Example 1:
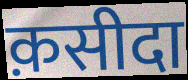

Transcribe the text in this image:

क़सीदा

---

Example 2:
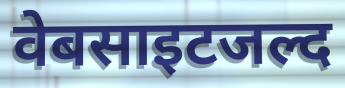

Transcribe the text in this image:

वेबसाइटजल्द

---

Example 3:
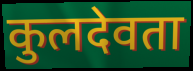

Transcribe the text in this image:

कुलदेवता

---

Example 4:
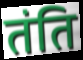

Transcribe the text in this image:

तंति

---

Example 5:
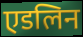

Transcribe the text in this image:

एडलिन